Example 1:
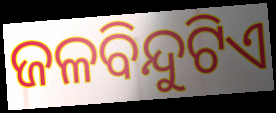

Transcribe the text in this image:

ଜଳବିନ୍ଦୁଟିଏ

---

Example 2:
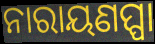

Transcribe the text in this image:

ନାରାୟଣପ୍ପା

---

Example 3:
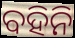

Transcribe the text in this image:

ବହିନି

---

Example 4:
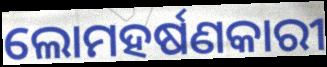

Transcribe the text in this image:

ଲୋମହର୍ଷଣକାରୀ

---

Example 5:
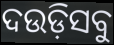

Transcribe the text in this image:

ଦଉଡ଼ିସବୁ